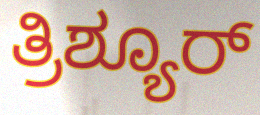
ತ್ರಿಶ್ಯೂರ್